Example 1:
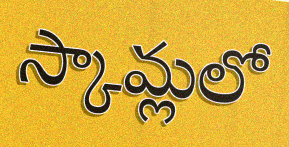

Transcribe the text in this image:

స్కామ్లలో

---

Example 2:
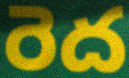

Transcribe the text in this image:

రెద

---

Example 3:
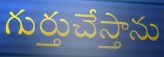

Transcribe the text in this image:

గుర్తుచేస్తాను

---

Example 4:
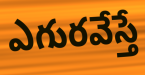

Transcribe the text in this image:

ఎగురవేస్తే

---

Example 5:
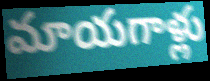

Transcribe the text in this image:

మాయగాళ్లు